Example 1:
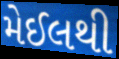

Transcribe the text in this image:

મેઈલથી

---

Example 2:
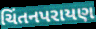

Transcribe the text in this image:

ચિંતનપરાયણ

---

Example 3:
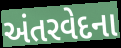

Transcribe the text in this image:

અંતરવેદના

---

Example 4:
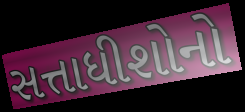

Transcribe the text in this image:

સત્તાધીશોનો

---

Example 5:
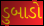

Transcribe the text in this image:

ડુબાડો